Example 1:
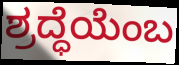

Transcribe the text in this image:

ಶ್ರದ್ಧೆಯೆಂಬ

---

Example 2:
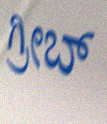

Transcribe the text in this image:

ಗ್ರೀಬ್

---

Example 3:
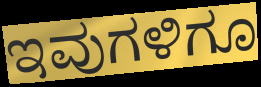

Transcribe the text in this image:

ಇವುಗಳಿಗೂ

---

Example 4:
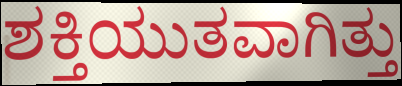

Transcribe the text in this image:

ಶಕ್ತಿಯುತವಾಗಿತ್ತು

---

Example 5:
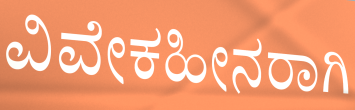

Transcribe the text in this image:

ವಿವೇಕಹೀನರಾಗಿ